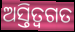
ଅସ୍ତିତ୍ବଗତ